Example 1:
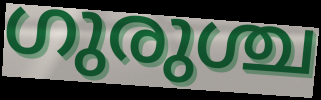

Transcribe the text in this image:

ഗുരുശ്ച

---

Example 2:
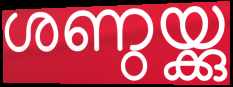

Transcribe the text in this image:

ശണ്ഠയ്ക്കു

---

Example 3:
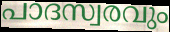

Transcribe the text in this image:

പാദസ്വരവും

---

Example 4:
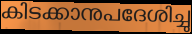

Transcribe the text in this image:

കിടക്കാനുപദേശിച്ചു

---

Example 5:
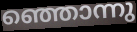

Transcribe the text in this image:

ഞ്ഞൊന്നു